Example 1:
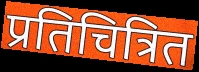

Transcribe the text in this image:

प्रतिचित्रित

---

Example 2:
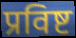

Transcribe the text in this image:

प्रविष्ट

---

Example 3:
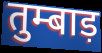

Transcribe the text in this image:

तुम्बाड़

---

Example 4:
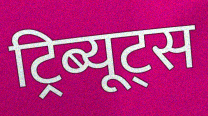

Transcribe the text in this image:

ट्रिब्यूट्स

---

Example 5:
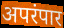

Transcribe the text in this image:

अपरंपार